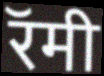
रॅमी